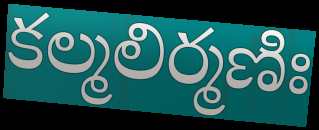
కల్మలిర్మణిః